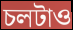
চলটাও